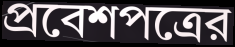
প্রবেশপত্রের